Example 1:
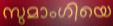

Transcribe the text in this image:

സുമാംഗിയെ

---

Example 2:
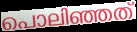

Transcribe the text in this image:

പൊലിഞ്ഞത്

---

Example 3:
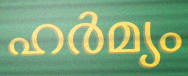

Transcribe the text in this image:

ഹർമ്യം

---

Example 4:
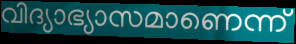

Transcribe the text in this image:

വിദ്യാഭ്യാസമാണെന്ന്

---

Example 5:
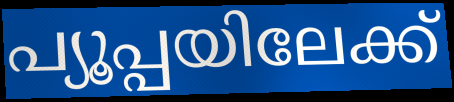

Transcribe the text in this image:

പ്യൂപ്പയിലേക്ക്